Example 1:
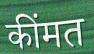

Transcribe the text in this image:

कींमत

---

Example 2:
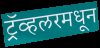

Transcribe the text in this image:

ट्रॅव्हलरमधून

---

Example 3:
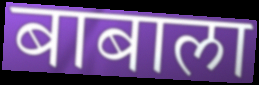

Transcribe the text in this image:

बाबाला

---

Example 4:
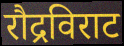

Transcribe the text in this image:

रौद्रविराट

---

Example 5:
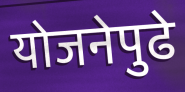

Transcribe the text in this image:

योजनेपुढे